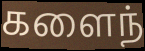
களைந்